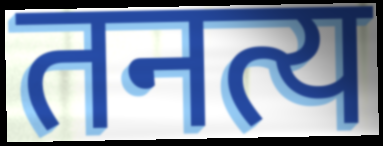
तनत्य